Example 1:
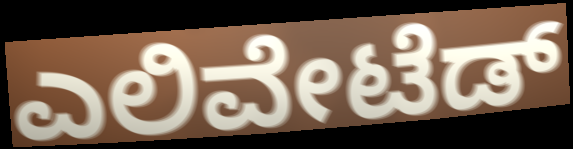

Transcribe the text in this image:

ಎಲಿವೇಟೆಡ್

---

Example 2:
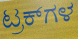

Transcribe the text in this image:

ಟ್ರಕ್‌ಗಳ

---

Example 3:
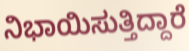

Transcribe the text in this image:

ನಿಭಾಯಿಸುತ್ತಿದ್ದಾರೆ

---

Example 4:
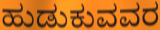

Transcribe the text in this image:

ಹುಡುಕುವವರ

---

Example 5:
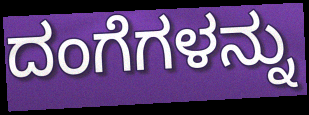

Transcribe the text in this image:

ದಂಗೆಗಳನ್ನು